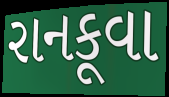
રાનકૂવા